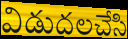
విడుదలచేసి